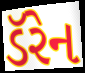
ડૅરેન